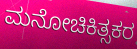
ಮನೋಚಿಕಿತ್ಸಕರ